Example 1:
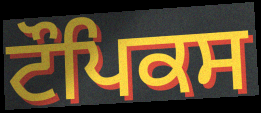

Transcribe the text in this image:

ਟੌਪਿਕਸ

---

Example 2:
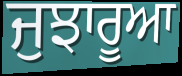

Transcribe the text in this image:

ਜੁਝਾਰੂਆ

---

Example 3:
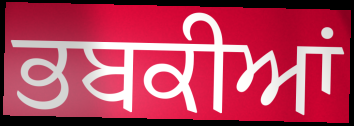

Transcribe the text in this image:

ਭਬਕੀਆਂ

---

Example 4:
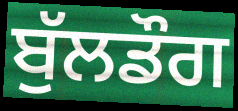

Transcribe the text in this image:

ਬੁੱਲਡੌਗ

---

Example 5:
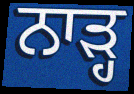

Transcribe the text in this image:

ਨਾੜ੍ਹ